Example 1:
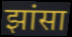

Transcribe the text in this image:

झांसा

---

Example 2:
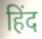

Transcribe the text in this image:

हिंद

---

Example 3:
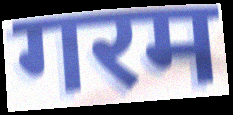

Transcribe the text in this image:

गरम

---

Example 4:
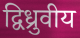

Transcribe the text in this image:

द्विध्रुवीय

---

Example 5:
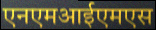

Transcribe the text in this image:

एनएमआईएमएस